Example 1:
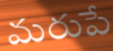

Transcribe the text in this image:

మరుపే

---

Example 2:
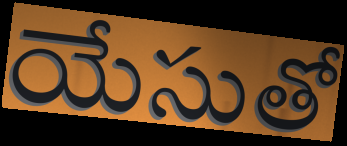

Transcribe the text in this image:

యేసుతో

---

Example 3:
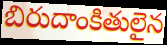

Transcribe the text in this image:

బిరుదాంకితులైన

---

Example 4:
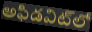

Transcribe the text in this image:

అఫిడవిట్‌లో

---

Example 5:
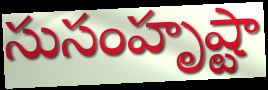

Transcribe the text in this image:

సుసంహృష్టా